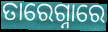
ତାରେଗ୍ନାରେ